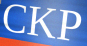
CKP